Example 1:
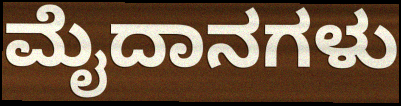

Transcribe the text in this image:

ಮೈದಾನಗಳು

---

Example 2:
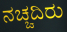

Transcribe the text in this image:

ನಚ್ಚದಿರು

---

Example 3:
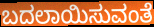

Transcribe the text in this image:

ಬದಲಾಯಿಸುವಂತೆ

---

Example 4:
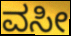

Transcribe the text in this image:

ವಸೀ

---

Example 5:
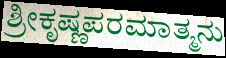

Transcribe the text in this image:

ಶ್ರೀಕೃಷ್ಣಪರಮಾತ್ಮನು